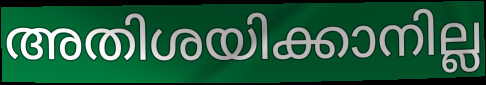
അതിശയിക്കാനില്ല